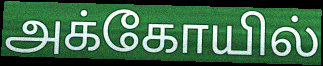
அக்கோயில்